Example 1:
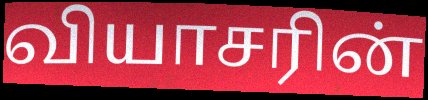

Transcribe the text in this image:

வியாசரின்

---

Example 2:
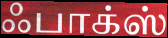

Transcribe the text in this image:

ஃபாக்ஸ்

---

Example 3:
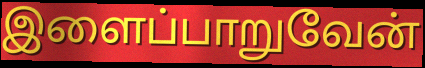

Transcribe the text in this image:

இளைப்பாறுவேன்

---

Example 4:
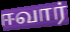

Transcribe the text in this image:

ஈவார்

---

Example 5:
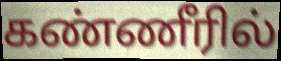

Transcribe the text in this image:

கண்ணீரில்